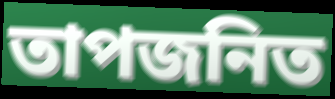
তাপজনিত